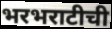
भरभराटीची